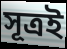
সূত্ৰই